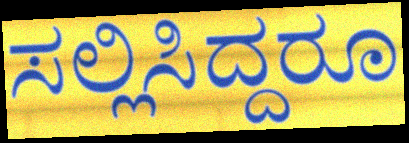
ಸಲ್ಲಿಸಿದ್ದರೂ